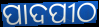
ପାଦପୀଠ